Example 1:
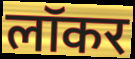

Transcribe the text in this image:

लॉकर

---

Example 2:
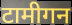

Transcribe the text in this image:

टामीगन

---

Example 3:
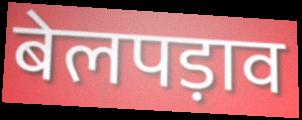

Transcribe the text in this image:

बेलपड़ाव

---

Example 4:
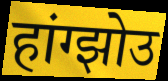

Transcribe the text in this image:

हांग्झोउ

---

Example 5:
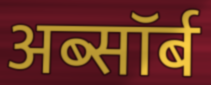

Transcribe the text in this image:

अब्सॉर्ब